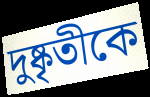
দুষ্কৃতীকে